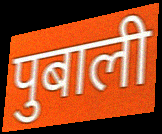
पुबाली